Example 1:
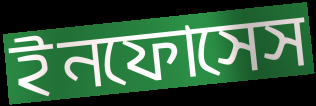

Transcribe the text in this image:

ইনফোসেস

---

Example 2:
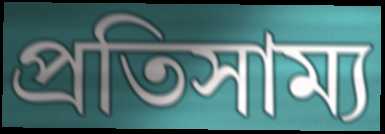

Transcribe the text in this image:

প্রতিসাম্য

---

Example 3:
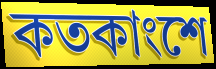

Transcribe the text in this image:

কতকাংশে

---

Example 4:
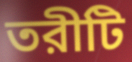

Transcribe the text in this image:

তরীটি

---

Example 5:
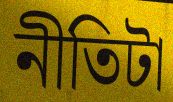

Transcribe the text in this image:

নীতিটা